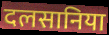
दलसानिया